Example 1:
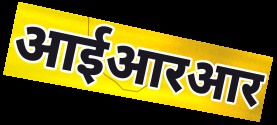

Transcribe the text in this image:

आईआरआर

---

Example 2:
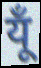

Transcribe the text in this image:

यूँ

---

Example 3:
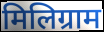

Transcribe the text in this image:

मिलिग्राम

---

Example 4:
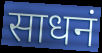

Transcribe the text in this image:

साधनं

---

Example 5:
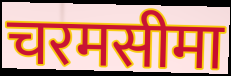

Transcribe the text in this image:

चरमसीमा